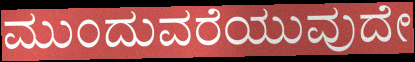
ಮುಂದುವರೆಯುವುದೇ